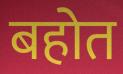
बहोत